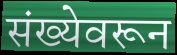
संख्येवरून